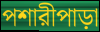
পশারীপাড়া